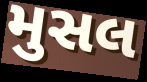
મુસલ